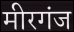
मीरगंज